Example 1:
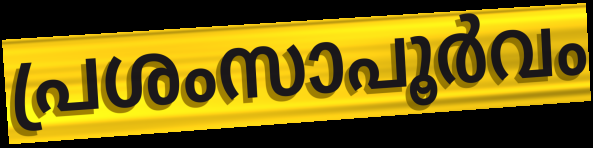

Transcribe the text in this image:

പ്രശംസാപൂർവം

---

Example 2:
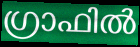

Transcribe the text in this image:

ഗ്രാഫിൽ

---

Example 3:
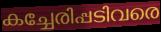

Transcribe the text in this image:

കച്ചേരിപ്പടിവരെ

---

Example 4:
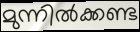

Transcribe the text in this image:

മുന്നിൽക്കണ്ട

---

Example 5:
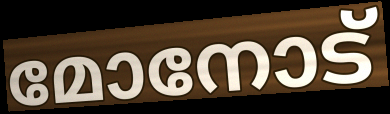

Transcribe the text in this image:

മോനോട്